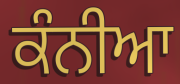
ਕੰਨੀਆ